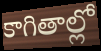
కాగితాల్లో